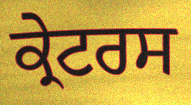
ਕ੍ਰੇਟਰਸ